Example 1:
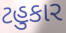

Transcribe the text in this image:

ટહુકાર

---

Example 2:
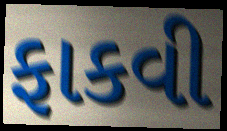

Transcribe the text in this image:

ફાકવી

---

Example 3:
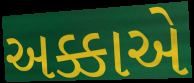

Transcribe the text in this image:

અક્કાએ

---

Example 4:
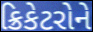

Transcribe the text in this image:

ક્રિકેટરોને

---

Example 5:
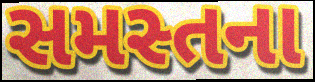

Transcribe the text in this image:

સમસ્તના